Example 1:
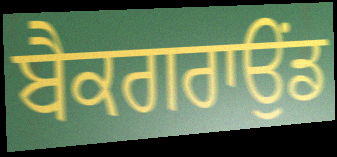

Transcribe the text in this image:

ਬੈਕਗਰਾਉਂਡ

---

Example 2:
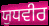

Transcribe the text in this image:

ਯੁਧਵੀਰ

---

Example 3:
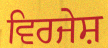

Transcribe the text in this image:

ਵਿਰਜੇਸ਼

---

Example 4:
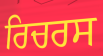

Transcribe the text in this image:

ਰਿਚਰਸ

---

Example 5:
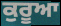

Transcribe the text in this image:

ਕੁਰੂਆ